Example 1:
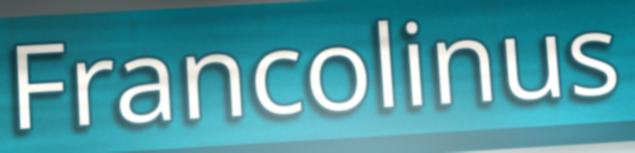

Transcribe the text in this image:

Francolinus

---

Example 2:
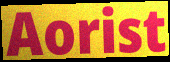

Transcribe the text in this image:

Aorist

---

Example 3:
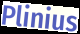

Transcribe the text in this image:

Plinius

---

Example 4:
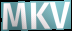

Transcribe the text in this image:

MKV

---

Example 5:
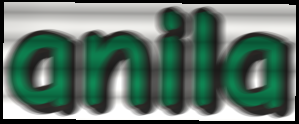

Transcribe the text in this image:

anila